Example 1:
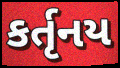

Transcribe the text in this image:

કર્તૃનય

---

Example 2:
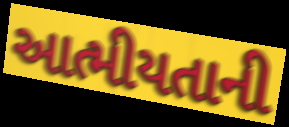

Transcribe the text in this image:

આત્મીયતાની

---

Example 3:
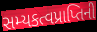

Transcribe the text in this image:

સમ્યકત્વપ્રાપ્તિની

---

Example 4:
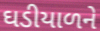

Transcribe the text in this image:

ઘડીયાળને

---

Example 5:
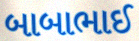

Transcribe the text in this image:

બાબાભાઈ